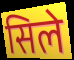
सिले